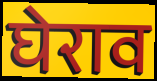
घेराव